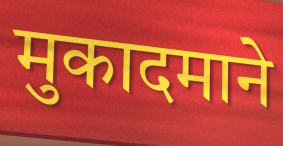
मुकादमाने